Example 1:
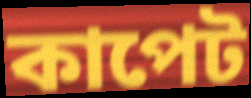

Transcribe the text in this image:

কাপেট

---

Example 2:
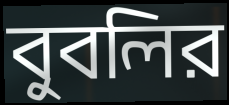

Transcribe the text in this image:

বুবলির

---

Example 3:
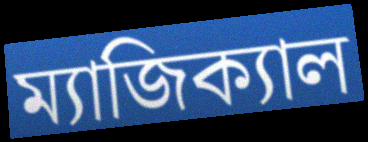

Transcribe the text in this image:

ম্যাজিক্যাল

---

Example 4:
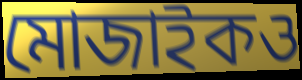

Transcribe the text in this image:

মোজাইকও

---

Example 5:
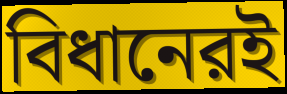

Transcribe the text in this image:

বিধানেরই